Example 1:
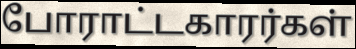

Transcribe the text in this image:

போராட்டகாரர்கள்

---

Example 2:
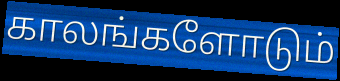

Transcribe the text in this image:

காலங்களோடும்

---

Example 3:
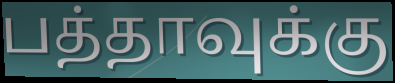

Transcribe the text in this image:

பத்தாவுக்கு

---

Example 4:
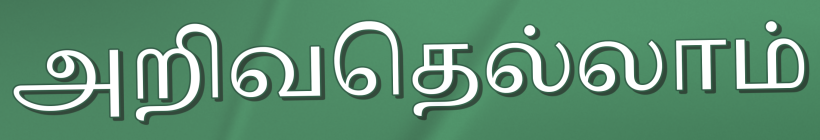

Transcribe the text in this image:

அறிவதெல்லாம்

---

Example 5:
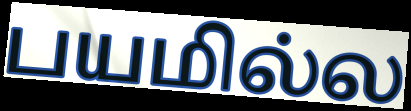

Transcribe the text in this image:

பயமில்ல